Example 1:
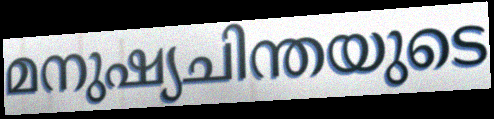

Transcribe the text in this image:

മനുഷ്യചിന്തയുടെ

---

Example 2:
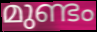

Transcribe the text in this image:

മുണ്ടം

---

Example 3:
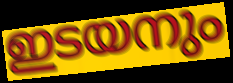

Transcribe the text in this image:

ഇടയനും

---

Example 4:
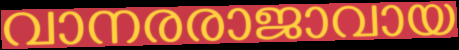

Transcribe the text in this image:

വാനരരാജാവായ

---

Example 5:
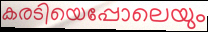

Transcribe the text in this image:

കരടിയെപ്പോലെയും